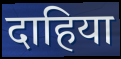
दाहिया